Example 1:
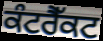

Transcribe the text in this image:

ਕੰਟਰੈੱਕਟ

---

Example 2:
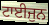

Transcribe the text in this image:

ਟਾਈਜੁਨ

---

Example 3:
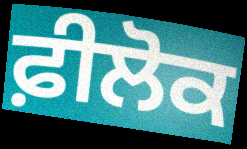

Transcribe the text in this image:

ਫ਼ੀਲੋਕ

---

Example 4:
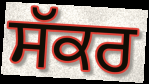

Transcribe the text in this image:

ਸੱਕਰ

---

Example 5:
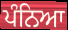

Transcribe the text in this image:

ਪੰਨਿਆ